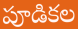
పూడికల